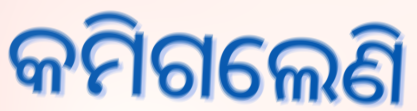
କମିଗଲେଣି